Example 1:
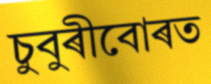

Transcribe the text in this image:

চুবুৰীবোৰত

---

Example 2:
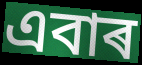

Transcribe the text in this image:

এবাৰ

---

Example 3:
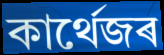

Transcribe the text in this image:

কাৰ্থেজৰ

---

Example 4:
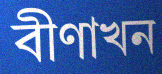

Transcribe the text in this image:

বীণাখন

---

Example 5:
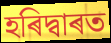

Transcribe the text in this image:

হৰিদ্বাৰত